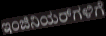
ಇಂಜಿನಿಯರ್‌ಗಳಿಗೆ